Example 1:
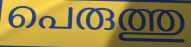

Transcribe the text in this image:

പെരുത്തു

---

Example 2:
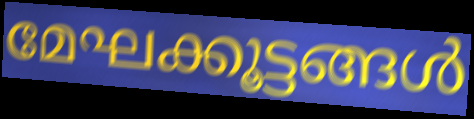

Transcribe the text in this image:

മേഘക്കൂട്ടങ്ങൾ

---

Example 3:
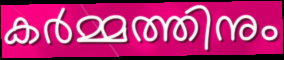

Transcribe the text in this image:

കർമ്മത്തിനും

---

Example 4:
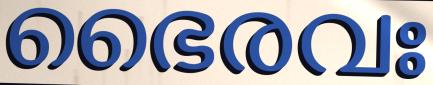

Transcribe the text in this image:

ഭൈരവഃ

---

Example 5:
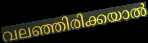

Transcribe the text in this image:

വലഞ്ഞിരിക്കയാൽ